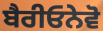
ਬੈਰੀਓਨੇਵੋ